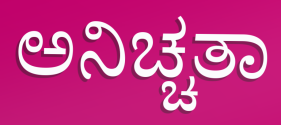
ಅನಿಚ್ಚತಾ